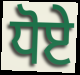
ਧੋਏ